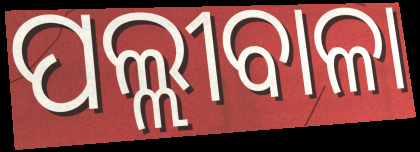
ପଲ୍ଲୀବାଳା